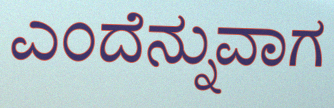
ಎಂದೆನ್ನುವಾಗ